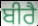
ਬੀਰੈ